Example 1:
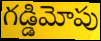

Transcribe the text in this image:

గడ్డిమోపు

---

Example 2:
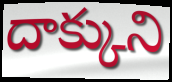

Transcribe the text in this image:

దాక్కుని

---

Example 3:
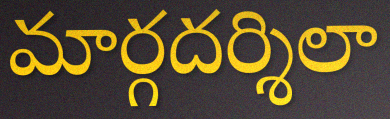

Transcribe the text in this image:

మార్గదర్శిలా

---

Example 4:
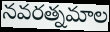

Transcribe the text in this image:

నవరత్నమాల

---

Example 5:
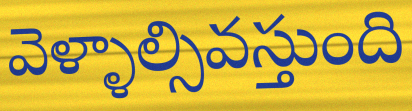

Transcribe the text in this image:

వెళ్ళాల్సివస్తుంది